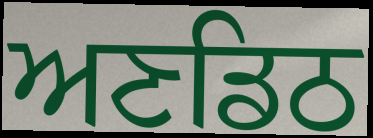
ਅਣਡਿਠ